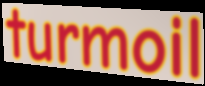
turmoil